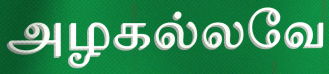
அழகல்லவே